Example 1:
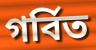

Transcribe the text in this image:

গৰ্বিত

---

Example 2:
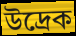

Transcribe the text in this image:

উদ্ৰেক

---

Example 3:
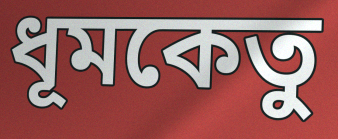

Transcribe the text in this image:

ধূমকেতু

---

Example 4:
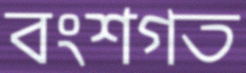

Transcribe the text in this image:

বংশগত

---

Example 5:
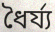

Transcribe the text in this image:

ধৈৰ্য্য